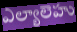
ఎల్యాలెహు